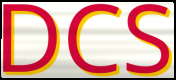
DCS